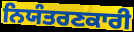
ਨਿਯੰਤਰਣਕਾਰੀ